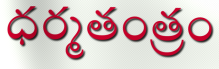
ధర్మతంత్రం